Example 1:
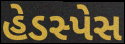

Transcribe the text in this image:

હેડસ્પેસ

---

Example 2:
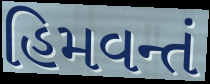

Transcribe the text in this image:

હિમવન્તં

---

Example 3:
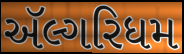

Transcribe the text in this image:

ઍલ્ગરિધમ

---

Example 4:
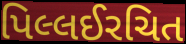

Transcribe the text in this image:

પિલ્લઈરચિત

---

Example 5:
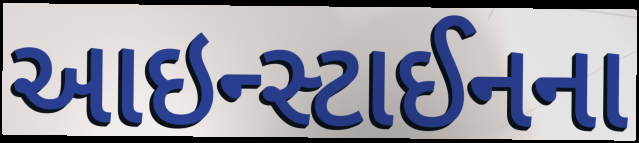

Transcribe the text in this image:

આઇન્સ્ટાઈનના